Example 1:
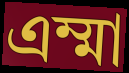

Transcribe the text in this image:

এম্মা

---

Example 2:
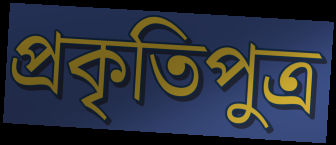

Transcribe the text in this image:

প্রকৃতিপুত্র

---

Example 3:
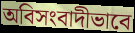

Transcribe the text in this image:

অবিসংবাদীভাবে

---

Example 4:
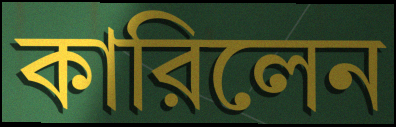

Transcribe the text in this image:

কারিলেন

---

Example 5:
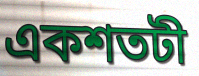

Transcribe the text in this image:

একশতটী